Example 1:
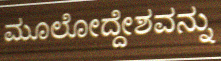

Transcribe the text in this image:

ಮೂಲೋದ್ದೇಶವನ್ನು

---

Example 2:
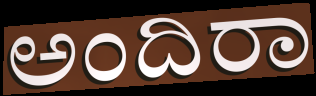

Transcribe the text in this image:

ಅಂದಿರಾ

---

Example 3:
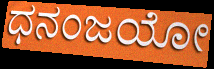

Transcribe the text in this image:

ಧನಂಜಯೋ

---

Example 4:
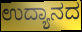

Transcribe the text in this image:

ಉದ್ಯಾನದ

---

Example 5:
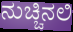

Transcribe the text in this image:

ನುಚ್ಚಿನಲಿ